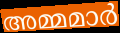
അമ്മമാർ